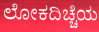
ಲೋಕದಿಚ್ಚೆಯ